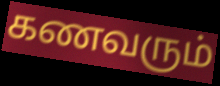
கணவரும்